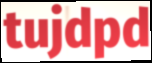
tujdpd